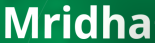
Mridha